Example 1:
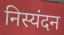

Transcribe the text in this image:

निस्यंदन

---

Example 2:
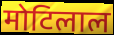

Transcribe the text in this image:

मोटिलाल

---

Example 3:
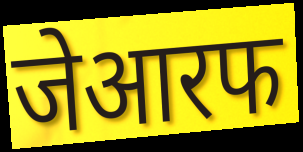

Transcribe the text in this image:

जेआरफ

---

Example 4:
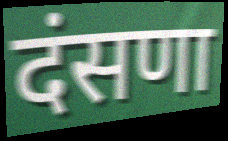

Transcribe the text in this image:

दंसणा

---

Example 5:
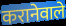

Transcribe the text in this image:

करानेवाले